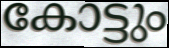
കോട്ടും